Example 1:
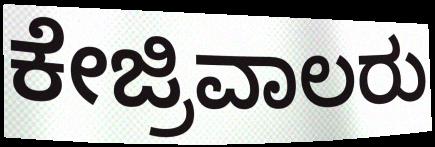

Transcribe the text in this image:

ಕೇಜ್ರಿವಾಲರು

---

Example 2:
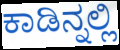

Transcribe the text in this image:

ಕಾಡಿನ್ನಲ್ಲಿ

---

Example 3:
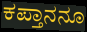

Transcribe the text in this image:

ಕಪ್ತಾನನೂ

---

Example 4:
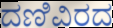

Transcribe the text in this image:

ದಣಿವಿರದ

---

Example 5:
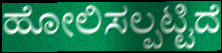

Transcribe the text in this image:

ಹೋಲಿಸಲ್ಪಟ್ಟಿದೆ